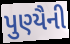
પુણ્યૈની